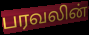
பரவலின்